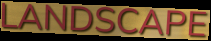
LANDSCAPE